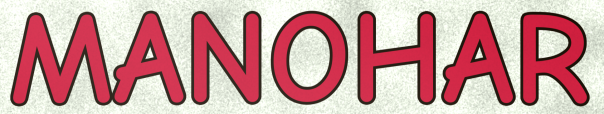
MANOHAR